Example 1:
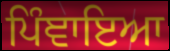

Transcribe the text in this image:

ਪਿੰਞਾਇਆ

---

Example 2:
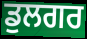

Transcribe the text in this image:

ਡੁਲਗਰ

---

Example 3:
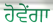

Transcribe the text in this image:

ਹੋਵੇਂਗਾ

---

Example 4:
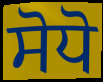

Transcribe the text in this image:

ਸੋਧੋ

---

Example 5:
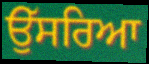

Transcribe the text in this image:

ਉੱਸਰਿਆ